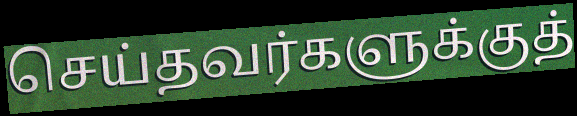
செய்தவர்களுக்குத்